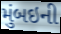
મુંબઇની